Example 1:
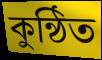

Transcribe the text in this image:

কুন্ঠিত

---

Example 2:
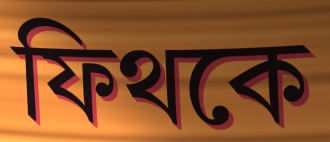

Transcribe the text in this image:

ফিথকে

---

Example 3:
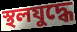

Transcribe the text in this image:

স্থলযুদ্ধে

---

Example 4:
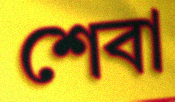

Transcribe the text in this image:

শেবা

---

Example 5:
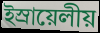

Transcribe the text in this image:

ইস্রায়েলীয়